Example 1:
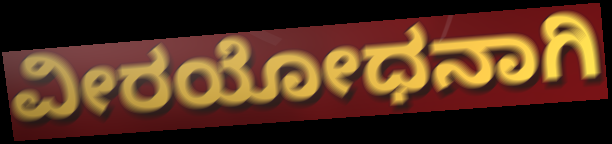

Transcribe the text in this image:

ವೀರಯೋಧನಾಗಿ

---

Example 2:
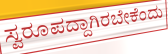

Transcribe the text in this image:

ಸ್ವರೂಪದ್ದಾಗಿರಬೇಕೆಂದು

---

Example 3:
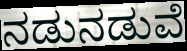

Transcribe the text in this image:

ನಡುನಡುವೆ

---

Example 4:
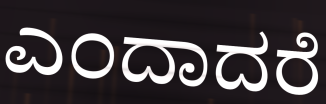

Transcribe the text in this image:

ಎಂದಾದರೆ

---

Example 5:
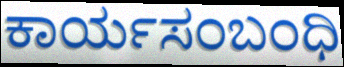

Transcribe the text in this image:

ಕಾರ್ಯಸಂಬಂಧಿ